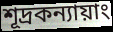
শূদ্রকন্যায়াং